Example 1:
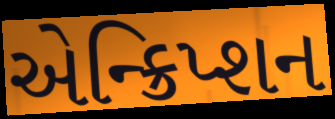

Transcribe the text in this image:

એન્ક્રિપ્શન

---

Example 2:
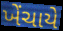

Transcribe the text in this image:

ખેંચાયે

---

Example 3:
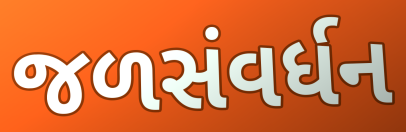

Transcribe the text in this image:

જળસંવર્ધન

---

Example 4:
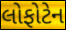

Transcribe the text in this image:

લોફોટેન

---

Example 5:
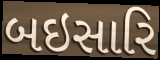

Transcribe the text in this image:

બઇસારિ